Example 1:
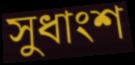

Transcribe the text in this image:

সুধাংশ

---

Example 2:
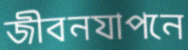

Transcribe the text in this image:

জীবনযাপনে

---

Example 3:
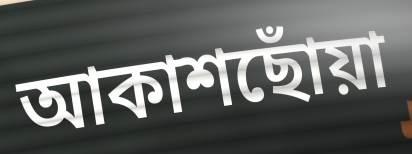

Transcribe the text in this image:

আকাশছোঁয়া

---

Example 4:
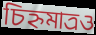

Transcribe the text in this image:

চিহ্নমাত্রও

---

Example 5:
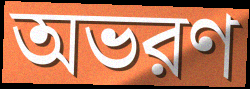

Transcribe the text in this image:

অভরণ